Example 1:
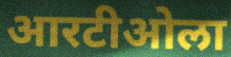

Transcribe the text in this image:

आरटीओला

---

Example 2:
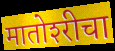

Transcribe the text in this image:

मातोश्रीचा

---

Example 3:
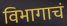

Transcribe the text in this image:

विभागाचं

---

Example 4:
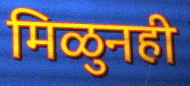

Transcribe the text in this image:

मिळुनही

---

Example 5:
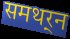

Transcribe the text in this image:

समथर्न